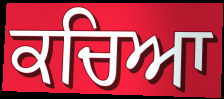
ਕਚਿਆ